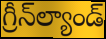
గ్రీన్‌ల్యాండ్